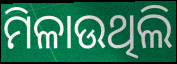
ମିଳାଉଥିଲି